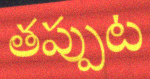
తప్పుట